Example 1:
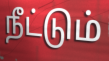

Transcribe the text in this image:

நீட்டும்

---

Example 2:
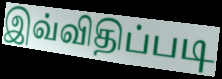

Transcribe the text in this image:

இவ்விதிப்படி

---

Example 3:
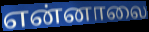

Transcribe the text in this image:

என்னாலை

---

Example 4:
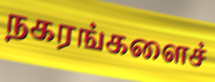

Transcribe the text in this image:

நகரங்களைச்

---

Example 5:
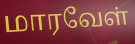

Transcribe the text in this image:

மாரவேள்